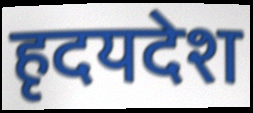
हृदयदेश